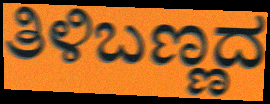
ತಿಳಿಬಣ್ಣದ